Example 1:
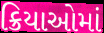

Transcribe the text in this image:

ક્રિયાઓમાં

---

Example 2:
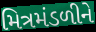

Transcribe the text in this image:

મિત્રમંડળીને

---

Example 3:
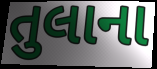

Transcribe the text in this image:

તુલાના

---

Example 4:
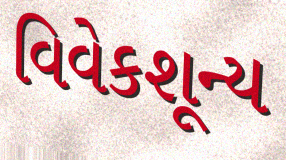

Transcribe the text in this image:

વિવેકશૂન્ય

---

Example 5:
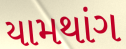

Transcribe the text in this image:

યામથાંગ